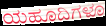
ಯಹೂದಿಗಳೂ